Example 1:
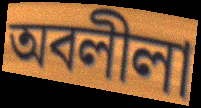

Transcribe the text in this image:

অবলীলা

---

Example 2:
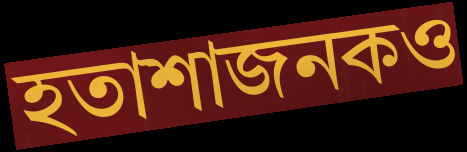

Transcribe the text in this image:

হতাশাজনকও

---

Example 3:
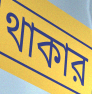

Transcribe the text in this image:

থাকার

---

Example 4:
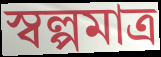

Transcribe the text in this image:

স্বল্পমাত্র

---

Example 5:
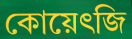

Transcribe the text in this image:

কোয়েৎজি